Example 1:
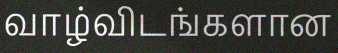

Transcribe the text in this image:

வாழ்விடங்களான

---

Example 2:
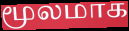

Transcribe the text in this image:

மூலமாக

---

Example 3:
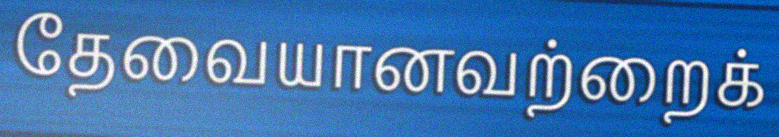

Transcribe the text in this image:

தேவையானவற்றைக்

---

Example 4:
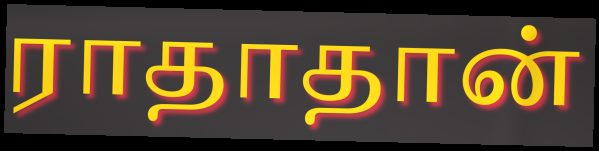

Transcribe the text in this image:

ராதாதான்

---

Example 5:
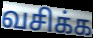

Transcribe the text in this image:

வசிக்க